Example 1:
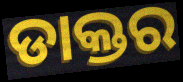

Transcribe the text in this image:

ଡାକ୍ତର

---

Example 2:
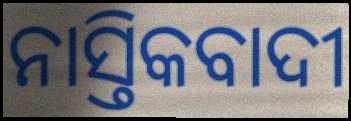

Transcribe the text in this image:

ନାସ୍ତିକବାଦୀ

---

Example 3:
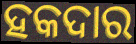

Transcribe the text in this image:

ହକଦାର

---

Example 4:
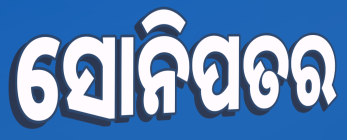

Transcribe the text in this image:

ସୋନିପତର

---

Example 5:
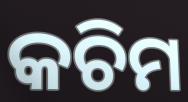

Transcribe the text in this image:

କଚିମ